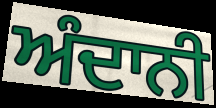
ਅੰਦਾਨੀ